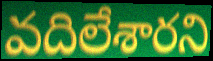
వదిలేశారని